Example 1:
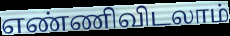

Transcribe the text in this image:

எண்ணிவிடலாம்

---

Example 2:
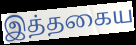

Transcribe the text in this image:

இத்தகைய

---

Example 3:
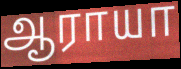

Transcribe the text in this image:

ஆராயா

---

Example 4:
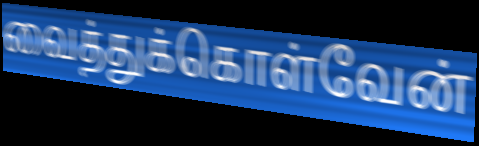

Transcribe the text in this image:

வைத்துக்கொள்வேன்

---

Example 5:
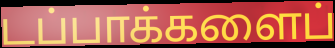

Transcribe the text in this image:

டப்பாக்களைப்